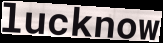
lucknow